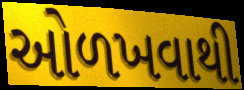
ઓળખવાથી